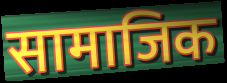
सामाजिक